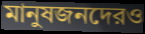
মানুষজনদেরও